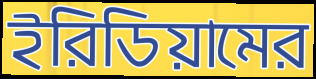
ইরিডিয়ামের